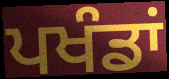
ਪਖੰਡਾਂ